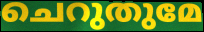
ചെറുതുമേ